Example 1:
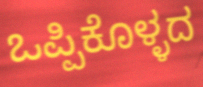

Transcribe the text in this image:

ಒಪ್ಪಿಕೊಳ್ಳದ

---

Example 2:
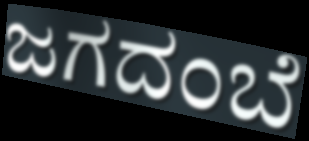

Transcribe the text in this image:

ಜಗದಂಬೆ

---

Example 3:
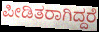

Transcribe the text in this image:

ಪೀಡಿತರಾಗಿದ್ದರೆ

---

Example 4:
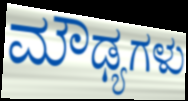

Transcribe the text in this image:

ಮೌಢ್ಯಗಳು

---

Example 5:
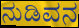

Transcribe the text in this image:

ನುಡಿವನ